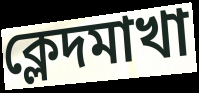
ক্লেদমাখা